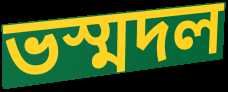
ভস্মদল